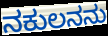
ನಕುಲನನು